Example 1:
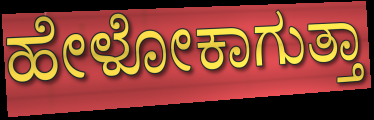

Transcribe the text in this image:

ಹೇಳೋಕಾಗುತ್ತಾ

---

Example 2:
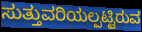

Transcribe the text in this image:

ಸುತ್ತುವರಿಯಲ್ಪಟ್ಟಿರುವ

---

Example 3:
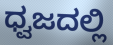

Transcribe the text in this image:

ಧ್ವಜದಲ್ಲಿ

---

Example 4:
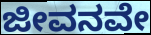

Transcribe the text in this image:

ಜೀವನವೇ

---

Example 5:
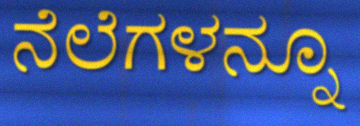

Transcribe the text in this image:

ನೆಲೆಗಳನ್ನೂ